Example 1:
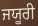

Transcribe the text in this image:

ਜਯੂਰੀ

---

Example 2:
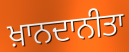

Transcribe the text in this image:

ਖ਼ਾਨਦਾਨੀਤਾ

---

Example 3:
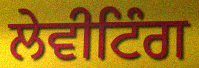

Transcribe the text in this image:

ਲੇਵੀਟਿੰਗ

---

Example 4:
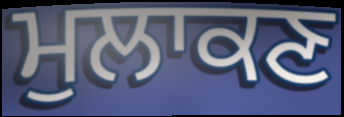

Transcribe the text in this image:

ਮੁਲਾਕਣ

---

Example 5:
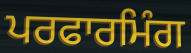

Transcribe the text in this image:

ਪਰਫਾਰਮਿੰਗ